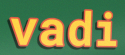
vadi